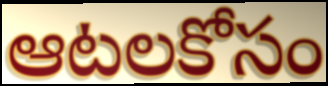
ఆటలకోసం